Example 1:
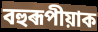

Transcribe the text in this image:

বহুৰূপীয়াক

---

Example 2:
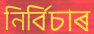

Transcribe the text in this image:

নিৰ্বিচাৰ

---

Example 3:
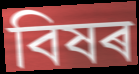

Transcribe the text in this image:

বিষৰ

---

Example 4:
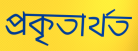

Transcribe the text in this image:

প্ৰকৃতাৰ্থত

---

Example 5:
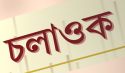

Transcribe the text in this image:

চলাওক